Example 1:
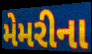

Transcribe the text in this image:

મેમરીના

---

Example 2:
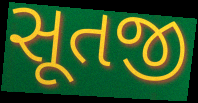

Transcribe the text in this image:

સૂતજી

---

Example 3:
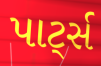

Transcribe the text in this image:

પાર્ટ્સ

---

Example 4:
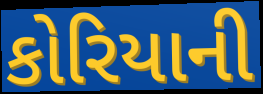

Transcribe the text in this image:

કોરિયાની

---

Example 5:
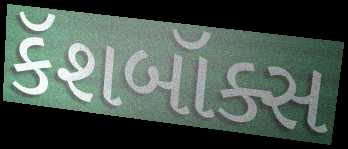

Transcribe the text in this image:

કૅશબૉક્સ